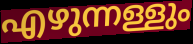
എഴുന്നള്ളും